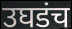
उघडंच